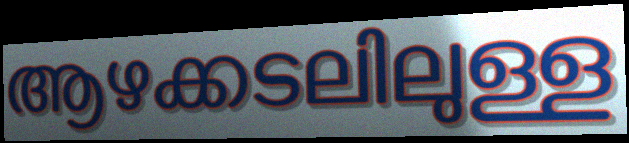
ആഴക്കടലിലുള്ള